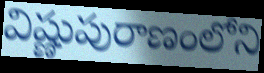
విష్ణుపురాణంలోని